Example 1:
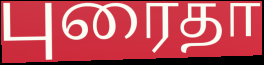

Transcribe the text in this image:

புரைதா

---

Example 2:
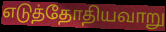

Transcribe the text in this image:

எடுத்தோதியவாறு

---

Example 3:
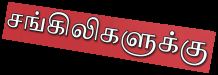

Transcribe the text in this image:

சங்கிலிகளுக்கு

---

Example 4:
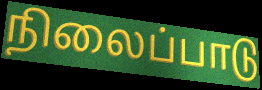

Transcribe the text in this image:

நிலைப்பாடு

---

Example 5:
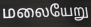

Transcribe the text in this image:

மலையேறு